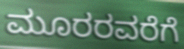
ಮೂರರವರೆಗೆ